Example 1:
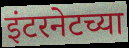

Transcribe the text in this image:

इंटरनेटच्या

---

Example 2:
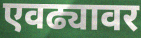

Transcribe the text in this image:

एवढ्यावर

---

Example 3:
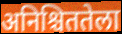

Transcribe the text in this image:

अनिश्चिततेला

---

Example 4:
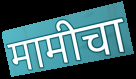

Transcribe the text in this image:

मामीचा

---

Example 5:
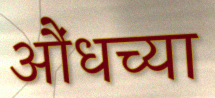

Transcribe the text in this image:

औंधच्या